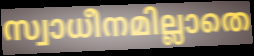
സ്വാധീനമില്ലാതെ